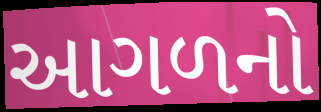
આગળનો